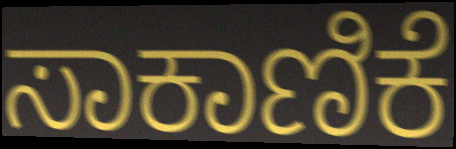
ಸಾಕಾಣಿಕೆ